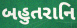
બહુતરાનિ